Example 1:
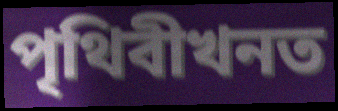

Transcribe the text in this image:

পৃথিবীখনত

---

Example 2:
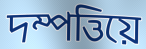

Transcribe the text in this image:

দম্পত্তিয়ে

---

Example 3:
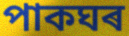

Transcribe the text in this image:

পাকঘৰ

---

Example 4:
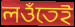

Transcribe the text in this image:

লওঁতেই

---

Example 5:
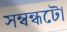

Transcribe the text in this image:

সম্বন্ধটো